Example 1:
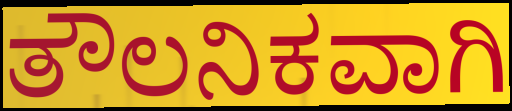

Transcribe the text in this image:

ತೌಲನಿಕವಾಗಿ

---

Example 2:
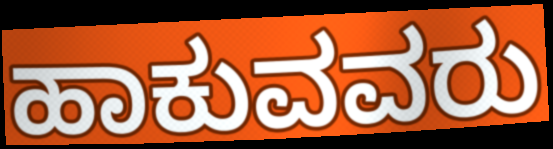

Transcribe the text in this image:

ಹಾಕುವವರು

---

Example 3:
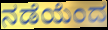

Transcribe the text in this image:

ನಡೆಯೆಂದ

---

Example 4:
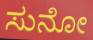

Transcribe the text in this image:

ಸುನೋ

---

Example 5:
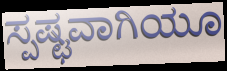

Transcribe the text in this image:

ಸ್ಪಷ್ಟವಾಗಿಯೂ